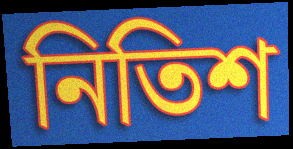
নিতিশ